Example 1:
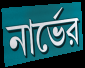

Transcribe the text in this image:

নার্ভের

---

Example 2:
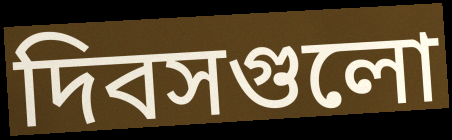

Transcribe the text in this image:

দিবসগুলো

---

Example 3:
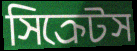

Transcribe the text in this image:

সিক্রেটস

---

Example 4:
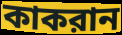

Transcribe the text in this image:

কাকরান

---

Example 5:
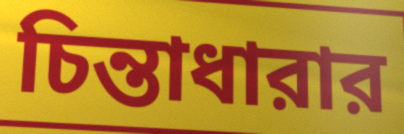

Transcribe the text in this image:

চিন্তাধারার